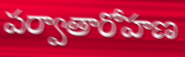
పర్వాతారోహణ